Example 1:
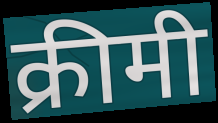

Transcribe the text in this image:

क्रीमी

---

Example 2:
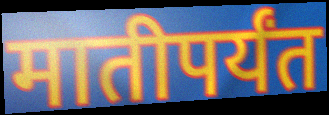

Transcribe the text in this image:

मातीपर्यंत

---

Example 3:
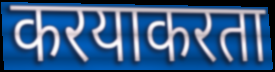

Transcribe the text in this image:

करयाकरता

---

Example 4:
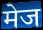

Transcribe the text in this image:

मेज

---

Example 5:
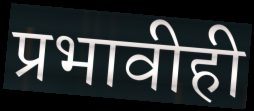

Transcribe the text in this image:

प्रभावीही